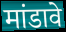
मांडावे